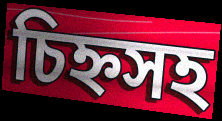
চিহ্নসহ